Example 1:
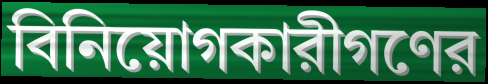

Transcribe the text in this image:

বিনিয়োগকারীগণের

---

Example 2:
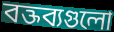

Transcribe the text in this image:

বক্তব্যগুলো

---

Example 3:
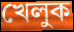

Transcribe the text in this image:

খেলুক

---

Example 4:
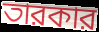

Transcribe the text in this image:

তারকার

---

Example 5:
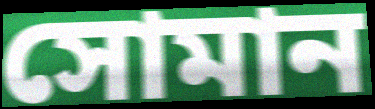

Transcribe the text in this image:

সোমান